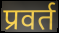
प्रवर्त